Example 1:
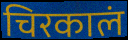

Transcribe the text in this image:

चिरकालं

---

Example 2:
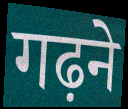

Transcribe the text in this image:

गढ़ने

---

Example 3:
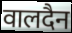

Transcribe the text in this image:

वालदैन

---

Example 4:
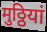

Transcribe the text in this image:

मुठ्ठियां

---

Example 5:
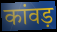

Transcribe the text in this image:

कांवड़